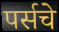
पर्सचे